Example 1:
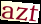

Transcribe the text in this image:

azt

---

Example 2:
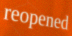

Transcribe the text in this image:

reopened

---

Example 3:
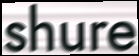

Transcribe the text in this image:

shure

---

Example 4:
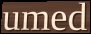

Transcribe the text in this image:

umed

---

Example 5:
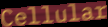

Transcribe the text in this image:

Cellular